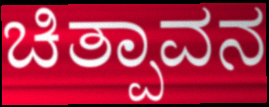
ಚಿತ್ಪಾವನ